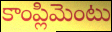
కాంప్లిమెంటు